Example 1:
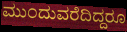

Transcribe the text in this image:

ಮುಂದುವರೆದಿದ್ದರೂ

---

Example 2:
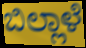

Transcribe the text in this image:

ಬಿಲ್ಲಾಳೆ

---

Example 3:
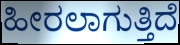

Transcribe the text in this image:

ಹೀರಲಾಗುತ್ತಿದೆ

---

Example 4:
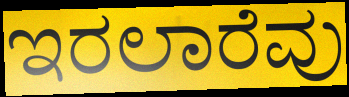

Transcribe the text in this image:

ಇರಲಾರೆವು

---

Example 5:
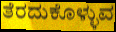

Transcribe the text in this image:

ತೆರದುಕೊಳ್ಳುವ